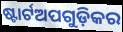
ଷ୍ଟାର୍ଟଅପଗୁଡ଼ିକର